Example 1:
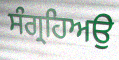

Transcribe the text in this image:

ਸੰਗ੍ਰਹਿਅਉ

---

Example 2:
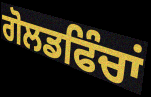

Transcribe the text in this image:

ਗੋਲਡਫਿੰਚਾਂ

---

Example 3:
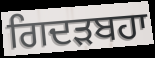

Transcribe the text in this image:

ਗਿਦੜਬਹਾ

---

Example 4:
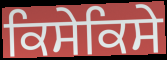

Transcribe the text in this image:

ਕਿਸੇਕਿਸੇ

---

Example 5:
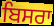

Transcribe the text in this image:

ਬਿਸਰਾ